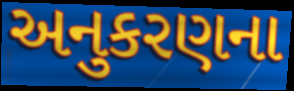
અનુકરણના